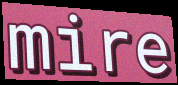
mire